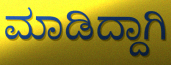
ಮಾಡಿದ್ದಾಗಿ